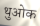
थुओक